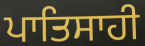
ਪਾਤਿਸਾਹੀ